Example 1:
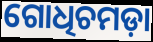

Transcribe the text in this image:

ଗୋଧିଚମଡ଼ା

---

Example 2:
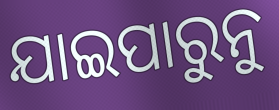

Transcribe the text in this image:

ଯାଇପାରୁନୁ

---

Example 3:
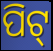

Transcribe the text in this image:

ପିଟ୍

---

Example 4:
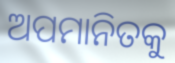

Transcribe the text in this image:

ଅପମାନିତକୁ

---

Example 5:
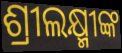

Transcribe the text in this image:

ଶ୍ରୀଲକ୍ଷ୍ମୀଙ୍କ